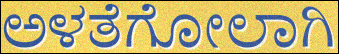
ಅಳತೆಗೋಲಾಗಿ